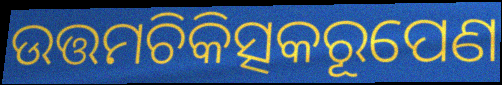
ଉତ୍ତମଚିକିତ୍ସକରୂପେଣ